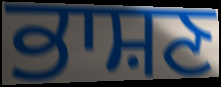
ਭਾਸ਼ਣ